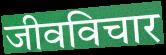
जीवविचार